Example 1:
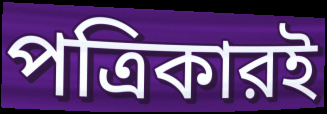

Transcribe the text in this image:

পত্রিকারই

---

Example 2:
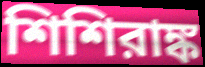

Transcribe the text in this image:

শিশিরাঙ্ক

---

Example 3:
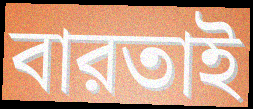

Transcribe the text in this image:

বারতাই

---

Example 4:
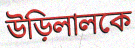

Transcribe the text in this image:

উড়িলালকে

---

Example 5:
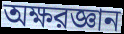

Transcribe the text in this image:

অক্ষরজ্ঞান